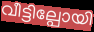
വീട്ടില്പോയി